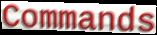
Commands